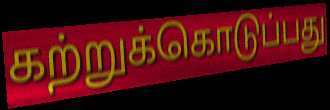
கற்றுக்கொடுப்பது